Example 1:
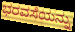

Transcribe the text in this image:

ಭರವಸೆಯನ್ನು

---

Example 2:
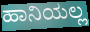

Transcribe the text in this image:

ಹಾನಿಯಲ್ಲ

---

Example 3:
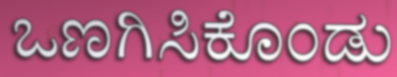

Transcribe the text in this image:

ಒಣಗಿಸಿಕೊಂಡು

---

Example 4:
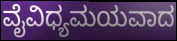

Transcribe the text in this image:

ವೈವಿಧ್ಯಮಯವಾದ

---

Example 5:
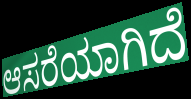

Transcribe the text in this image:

ಆಸರೆಯಾಗಿದೆ